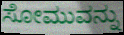
ಸೋಮುವನ್ನು